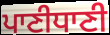
ਪਾਣੀਧਾਣੀ